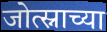
जोत्स्नाच्या